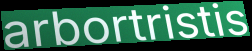
arbortristis